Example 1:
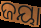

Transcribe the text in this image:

ଜୟା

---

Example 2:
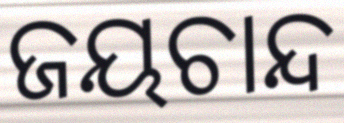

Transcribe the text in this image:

ଜୟଚାନ୍ଦ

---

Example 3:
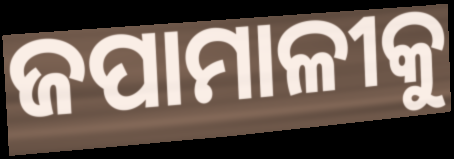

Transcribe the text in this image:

ଜପାମାଳୀକୁ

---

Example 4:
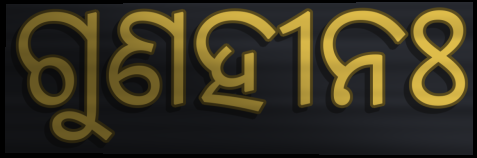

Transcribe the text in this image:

ଗୁଣହୀନଃ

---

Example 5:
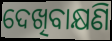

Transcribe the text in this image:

ଦେଖିବାକ୍ଷଣି